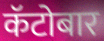
कॅटोबार